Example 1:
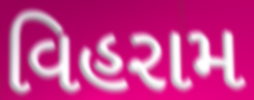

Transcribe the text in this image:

વિહરામ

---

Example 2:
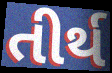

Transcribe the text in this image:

તીર્થ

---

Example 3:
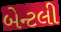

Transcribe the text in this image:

બેન્ટલી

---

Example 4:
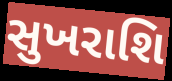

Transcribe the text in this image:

સુખરાશિ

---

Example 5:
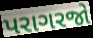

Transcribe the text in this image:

પરાગરજો